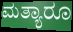
ಮತ್ಯಾರೂ